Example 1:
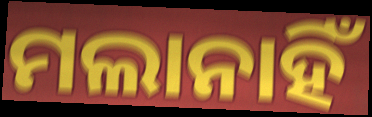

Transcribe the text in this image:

ମଲାନାହିଁ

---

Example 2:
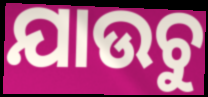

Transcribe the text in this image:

ଯାଉଚୁ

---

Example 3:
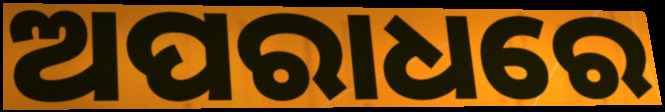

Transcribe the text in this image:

ଅପରାଧରେ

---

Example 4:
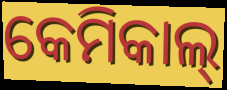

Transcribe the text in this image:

କେମିକାଲ୍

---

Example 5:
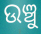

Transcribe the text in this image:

ଉଞ୍ଚୁ